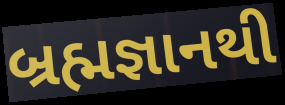
બ્રહ્મજ્ઞાનથી